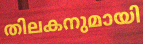
തിലകനുമായി